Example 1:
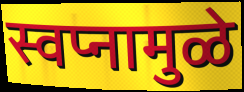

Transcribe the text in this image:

स्वप्नामुळे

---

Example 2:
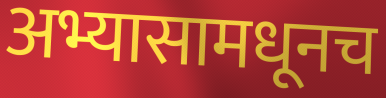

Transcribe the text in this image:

अभ्यासामधूनच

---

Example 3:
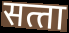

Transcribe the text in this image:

सत्‍ता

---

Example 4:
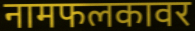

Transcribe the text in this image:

नामफलकावर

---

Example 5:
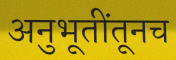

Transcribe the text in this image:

अनुभूतींतूनच